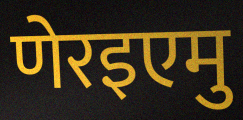
णेरइएमु